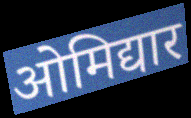
ओमिद्यार